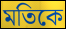
মতিকে